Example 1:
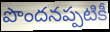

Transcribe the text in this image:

పొందనప్పటికీ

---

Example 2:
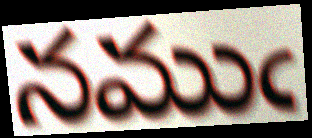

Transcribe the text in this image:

నముఁ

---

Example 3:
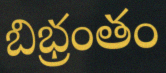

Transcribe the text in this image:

బిభ్రంతం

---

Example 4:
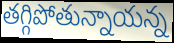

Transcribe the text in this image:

తగ్గిపోతున్నాయన్న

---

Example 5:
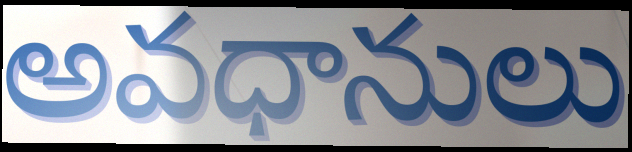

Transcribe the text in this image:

అవధానులు